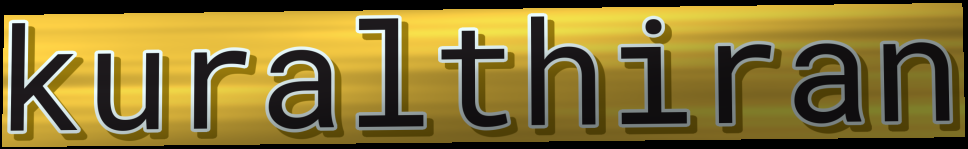
kuralthiran